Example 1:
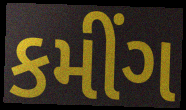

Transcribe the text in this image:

કમીંગ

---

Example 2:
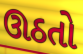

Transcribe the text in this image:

ઊઠતો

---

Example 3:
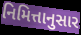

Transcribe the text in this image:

નિમિત્તાનુસાર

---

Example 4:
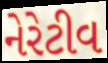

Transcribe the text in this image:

નેરેટીવ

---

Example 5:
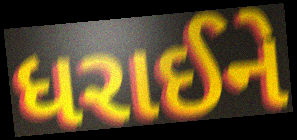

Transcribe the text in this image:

ધરાઈને